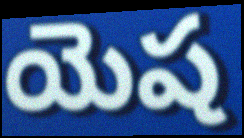
యెష